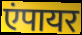
एंपायर